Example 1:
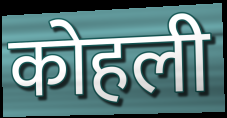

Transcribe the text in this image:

कोहली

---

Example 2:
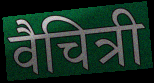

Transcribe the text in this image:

वैचित्री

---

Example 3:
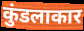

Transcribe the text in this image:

कुंडलाकार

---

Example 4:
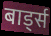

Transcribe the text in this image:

बार्ड्स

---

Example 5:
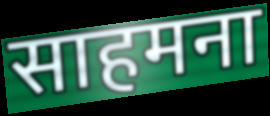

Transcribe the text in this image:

साहमना